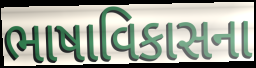
ભાષાવિકાસના